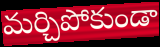
మర్చిపోకుండా